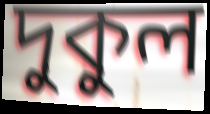
দুকুল